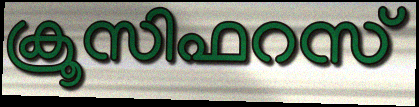
ക്രൂസിഫറസ്